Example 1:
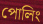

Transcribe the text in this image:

পোলিং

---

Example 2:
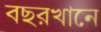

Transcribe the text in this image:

বছরখানে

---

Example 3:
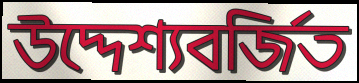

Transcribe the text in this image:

উদ্দেশ্যবর্জিত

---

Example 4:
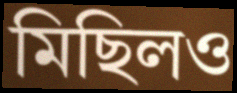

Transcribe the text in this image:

মিছিলও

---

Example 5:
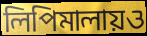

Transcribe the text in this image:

লিপিমালায়ও